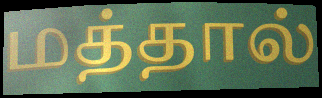
மத்தால்